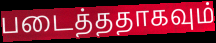
படைத்ததாகவும்